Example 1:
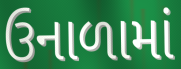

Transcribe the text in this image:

ઉનાળામાં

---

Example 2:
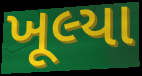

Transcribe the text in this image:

ખૂલ્યા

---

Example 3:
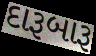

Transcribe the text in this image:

દારૂબારૂ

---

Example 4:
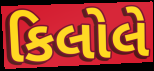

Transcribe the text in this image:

કિલોલે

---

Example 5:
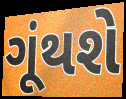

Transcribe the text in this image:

ગૂંથશે